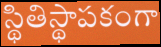
స్థితిస్థాపకంగా